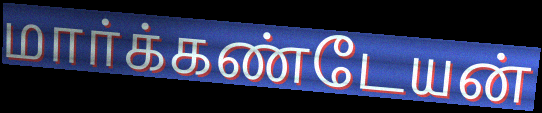
மார்க்கண்டேயன்